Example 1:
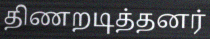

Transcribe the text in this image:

திணறடித்தனர்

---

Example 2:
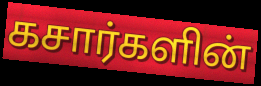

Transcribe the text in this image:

கசார்களின்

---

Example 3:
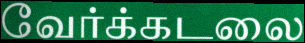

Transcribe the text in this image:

வேர்க்கடலை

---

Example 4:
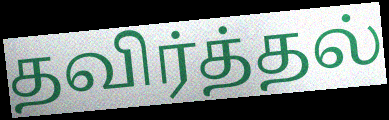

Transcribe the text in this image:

தவிர்த்தல்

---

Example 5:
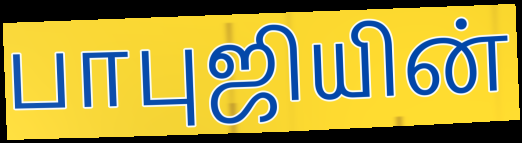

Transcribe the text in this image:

பாபுஜியின்